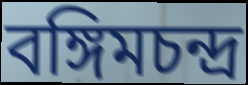
বঙ্গিমচন্দ্র